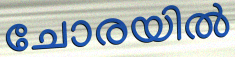
ചോരയിൽ